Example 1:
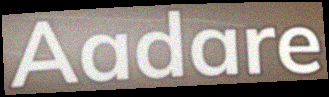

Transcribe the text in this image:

Aadare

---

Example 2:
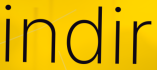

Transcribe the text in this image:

indir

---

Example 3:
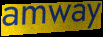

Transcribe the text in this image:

amway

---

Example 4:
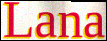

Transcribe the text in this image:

Lana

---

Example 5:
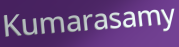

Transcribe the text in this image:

Kumarasamy